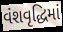
વંશવૃદ્ધિમાં